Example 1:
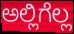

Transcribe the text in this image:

ಅಲ್ಲಿಗೆಲ್ಲ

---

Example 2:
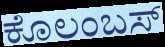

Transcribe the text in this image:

ಕೊಲಂಬಸ್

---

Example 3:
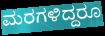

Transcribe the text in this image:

ಮರಗಳಿದ್ದರೂ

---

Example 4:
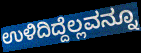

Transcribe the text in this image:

ಉಳಿದಿದ್ದೆಲ್ಲವನ್ನೂ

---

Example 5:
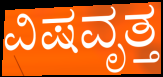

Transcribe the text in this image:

ವಿಷವೃತ್ತ